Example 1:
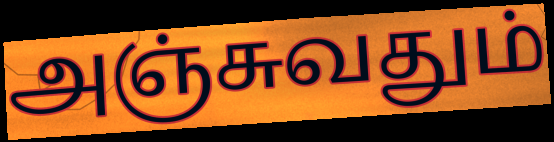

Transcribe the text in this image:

அஞ்சுவதும்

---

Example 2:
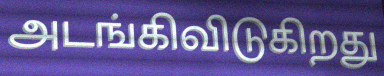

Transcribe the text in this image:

அடங்கிவிடுகிறது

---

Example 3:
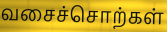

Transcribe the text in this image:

வசைச்சொற்கள்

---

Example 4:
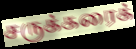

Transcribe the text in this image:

சருக்கரைக்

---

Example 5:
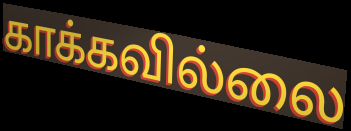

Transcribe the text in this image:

காக்கவில்லை